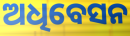
ଅଧିବେସନ